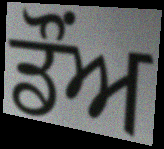
ਡੌਂਅ